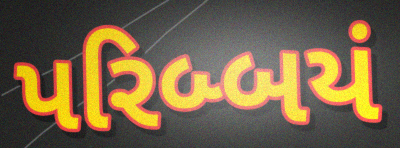
પરિબ્બયં